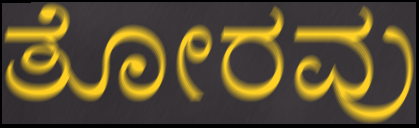
ತೋರವು